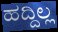
ಹದ್ದಿಲ್ಲ